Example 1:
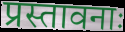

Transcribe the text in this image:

प्रस्तावनाः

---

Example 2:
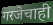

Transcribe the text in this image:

गरजेचाही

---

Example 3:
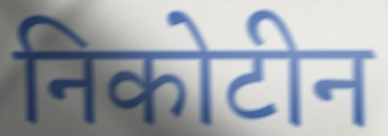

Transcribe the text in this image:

निकोटीन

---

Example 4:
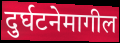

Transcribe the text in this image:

दुर्घटनेमागील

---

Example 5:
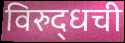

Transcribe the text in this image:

विरुद्धची